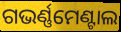
ଗଭର୍ଣ୍ଣମେଣ୍ଟାଲ